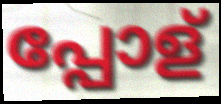
പ്പോള്